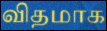
விதமாக